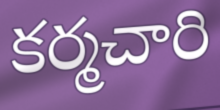
కర్మచారి